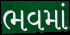
ભવમાં